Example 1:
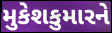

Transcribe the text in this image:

મુકેશકુમારને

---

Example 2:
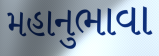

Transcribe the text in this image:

મહાનુભાવા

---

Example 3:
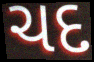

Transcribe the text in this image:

ચદ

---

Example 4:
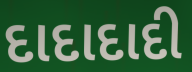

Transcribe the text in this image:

દાદાદાદી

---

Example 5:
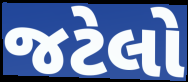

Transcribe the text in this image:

જટેલો